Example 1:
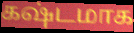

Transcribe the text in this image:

கஷ்டமாக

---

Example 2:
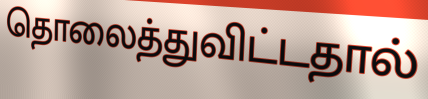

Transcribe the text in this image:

தொலைத்துவிட்டதால்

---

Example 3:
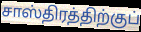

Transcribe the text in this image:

சாஸ்திரத்திற்குப்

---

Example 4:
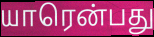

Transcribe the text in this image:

யாரென்பது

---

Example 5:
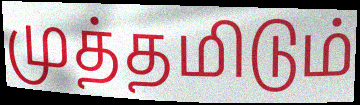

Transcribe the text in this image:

முத்தமிடும்